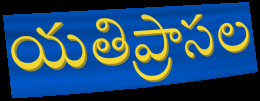
యతిప్రాసల